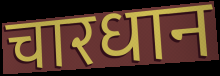
चारधान